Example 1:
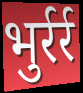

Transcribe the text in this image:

भुर्रर्र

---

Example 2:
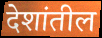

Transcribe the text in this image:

देशांतील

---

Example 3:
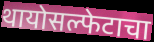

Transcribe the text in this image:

थायोसल्फेटाचा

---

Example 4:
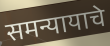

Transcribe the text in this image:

समन्यायाचे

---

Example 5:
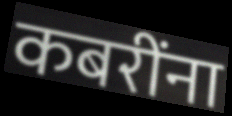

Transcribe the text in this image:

कबरींना